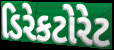
ડિરેકટોરેટ